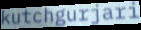
kutchgurjari